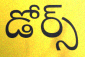
డోర్స్